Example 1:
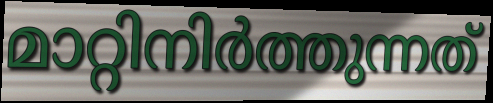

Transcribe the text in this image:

മാറ്റിനിർത്തുന്നത്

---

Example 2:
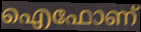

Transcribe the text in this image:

ഐഫോണ്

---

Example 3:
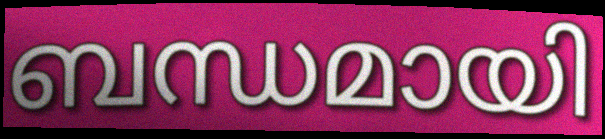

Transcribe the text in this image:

ബന്ധമായി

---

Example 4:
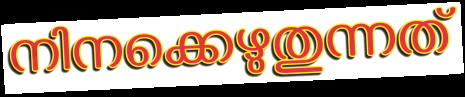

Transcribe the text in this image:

നിനക്കെഴുതുന്നത്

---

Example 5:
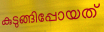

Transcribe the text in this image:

കുടുങ്ങിപ്പോയത്